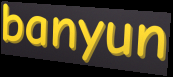
banyun